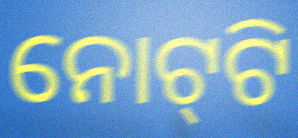
ନୋଟ୍‌ଟି